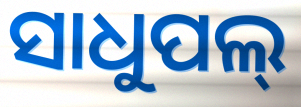
ସାଧୁପଲ୍